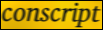
conscript